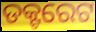
ଡକ୍ଟରେଟ